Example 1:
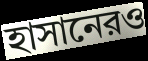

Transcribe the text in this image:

হাসানেরও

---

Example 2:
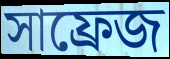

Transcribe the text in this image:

সাফ্রেজ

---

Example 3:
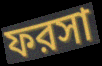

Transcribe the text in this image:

ফরসা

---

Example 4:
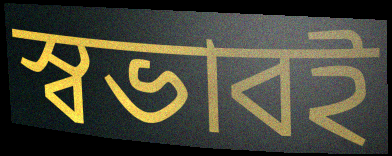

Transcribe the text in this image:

স্বভাবই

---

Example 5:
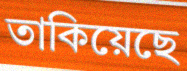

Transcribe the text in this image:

তাকিয়েছে